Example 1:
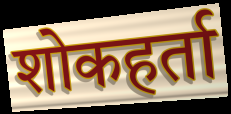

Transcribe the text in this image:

शोकहर्ता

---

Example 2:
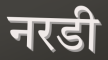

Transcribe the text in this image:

नरडी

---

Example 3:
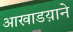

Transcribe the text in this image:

आखाडय़ाने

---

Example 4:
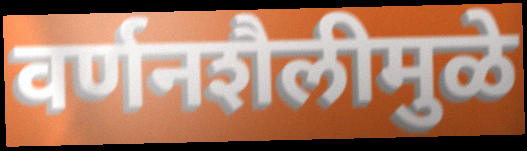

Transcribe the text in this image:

वर्णनशैलीमुळे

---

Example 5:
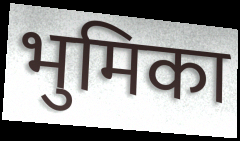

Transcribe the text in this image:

भुमिका